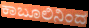
ಕಾಬೂಲಿನಿಂದ